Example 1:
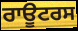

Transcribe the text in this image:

ਰਾਊਟਰਸ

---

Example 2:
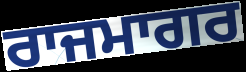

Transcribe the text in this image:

ਰਾਜਮਾਗਰ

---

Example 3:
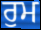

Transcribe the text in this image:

ਰੁਮ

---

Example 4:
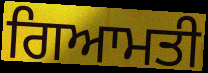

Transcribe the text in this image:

ਗਿਆਮਤੀ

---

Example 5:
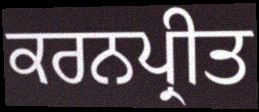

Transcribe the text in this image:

ਕਰਨਪ੍ਰੀਤ